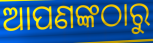
ଆପଣଙ୍କଠାରୁ